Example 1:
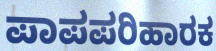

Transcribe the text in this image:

ಪಾಪಪರಿಹಾರಕ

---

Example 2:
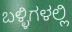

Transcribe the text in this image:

ಬಳ್ಳಿಗಳಲ್ಲಿ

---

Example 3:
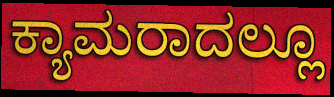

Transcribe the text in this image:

ಕ್ಯಾಮರಾದಲ್ಲೂ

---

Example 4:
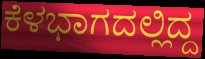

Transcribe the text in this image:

ಕೆಳಭಾಗದಲ್ಲಿದ್ದ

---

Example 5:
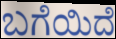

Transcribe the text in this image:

ಬಗೆಯಿದೆ